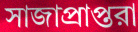
সাজাপ্রাপ্তরা